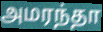
அமரந்தா